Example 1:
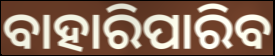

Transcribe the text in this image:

ବାହାରିପାରିବ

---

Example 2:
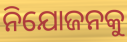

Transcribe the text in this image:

ନିଯୋଜନକୁ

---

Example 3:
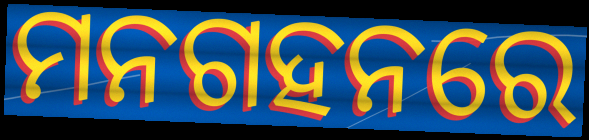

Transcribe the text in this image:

ମନଗହନରେ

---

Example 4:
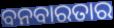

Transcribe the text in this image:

ବନବାରତାର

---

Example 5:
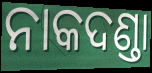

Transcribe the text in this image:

ନାକଦଣ୍ଡା